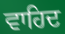
ਵਾਹਿਦ